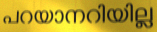
പറയാനറിയില്ല